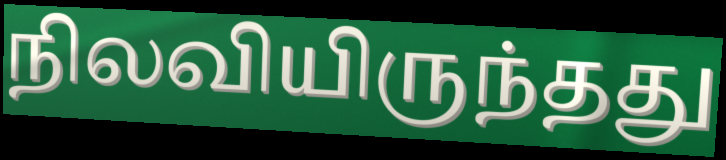
நிலவியிருந்தது